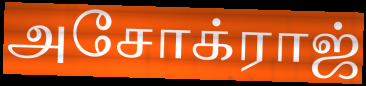
அசோக்ராஜ்